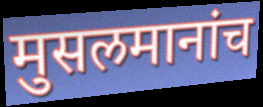
मुसलमानांच